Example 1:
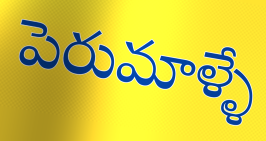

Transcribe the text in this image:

పెరుమాళ్ళే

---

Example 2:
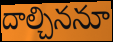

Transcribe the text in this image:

దాల్చిననూ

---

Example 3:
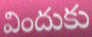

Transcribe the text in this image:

విందుకు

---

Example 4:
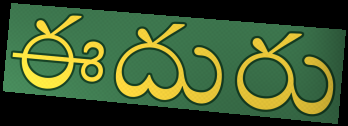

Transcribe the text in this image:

ఈదురు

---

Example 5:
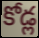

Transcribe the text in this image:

కోడ్ల